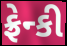
ફ્રેન્કી